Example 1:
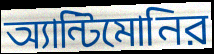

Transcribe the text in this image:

অ্যান্টিমোনির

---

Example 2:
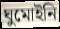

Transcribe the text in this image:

ঘুমোইনি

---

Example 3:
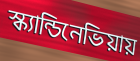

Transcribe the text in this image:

স্ক্যান্ডিনেভিয়ায়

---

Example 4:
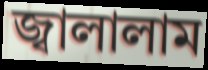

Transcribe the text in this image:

জ্বালালাম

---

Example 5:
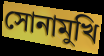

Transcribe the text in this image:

সোনামুখি